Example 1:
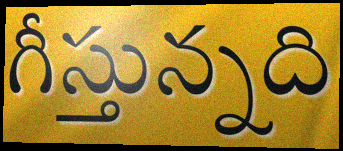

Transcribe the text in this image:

గీస్తున్నది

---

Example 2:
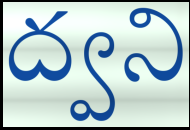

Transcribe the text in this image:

ద్వని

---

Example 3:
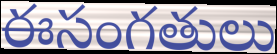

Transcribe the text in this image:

ఈసంగతులు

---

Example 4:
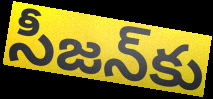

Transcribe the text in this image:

సీజన్‌కు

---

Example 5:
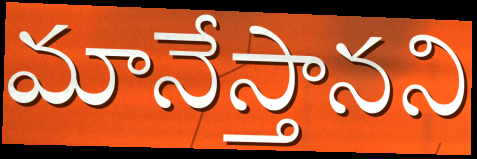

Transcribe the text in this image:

మానేస్తానని